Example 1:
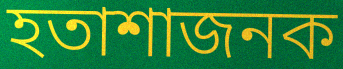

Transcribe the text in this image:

হতাশাজনক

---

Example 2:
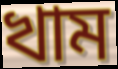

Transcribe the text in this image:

খাম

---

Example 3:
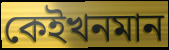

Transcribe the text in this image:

কেইখনমান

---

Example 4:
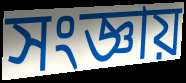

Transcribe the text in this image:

সংজ্ঞায়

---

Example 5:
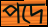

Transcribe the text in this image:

পদে